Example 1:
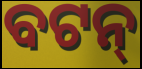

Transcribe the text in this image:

ବଟନ୍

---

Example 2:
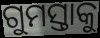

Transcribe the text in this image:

ଗୁମସ୍ତାକୁ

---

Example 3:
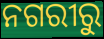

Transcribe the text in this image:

ନଗରୀରୁ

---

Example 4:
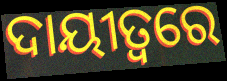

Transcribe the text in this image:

ଦାୟୀତ୍ଵରେ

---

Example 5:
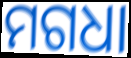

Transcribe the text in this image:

ମଗଧା